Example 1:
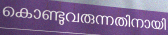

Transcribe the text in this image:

കൊണ്ടുവരുന്നതിനായി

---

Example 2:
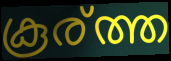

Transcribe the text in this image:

കൂര്ത്ത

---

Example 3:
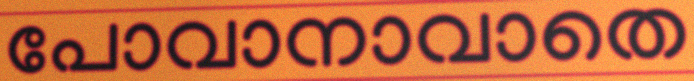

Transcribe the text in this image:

പോവാനാവാതെ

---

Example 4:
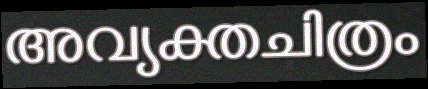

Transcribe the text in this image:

അവ്യക്തചിത്രം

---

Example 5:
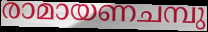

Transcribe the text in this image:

രാമായണചമ്പു